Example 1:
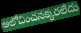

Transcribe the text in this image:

ఆలోచించనక్కరలేదు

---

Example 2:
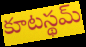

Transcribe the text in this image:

కూటస్థమ్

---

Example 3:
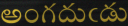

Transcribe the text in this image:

అంగదుఁడు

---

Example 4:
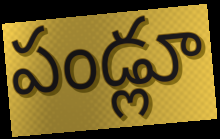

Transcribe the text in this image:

పండ్లూ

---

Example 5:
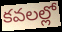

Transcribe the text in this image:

కవలల్లో